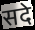
सदे